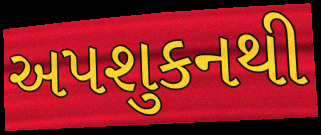
અપશુકનથી